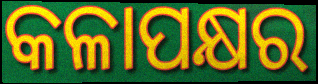
କଳାପକ୍ଷର